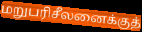
மறுபரிசீலனைக்குத்